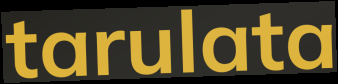
tarulata